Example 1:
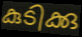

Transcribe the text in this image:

കുടിക്കു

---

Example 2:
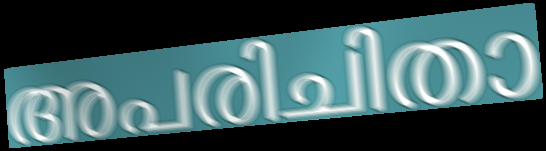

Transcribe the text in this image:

അപരിചിതാ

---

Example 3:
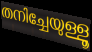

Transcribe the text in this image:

തനിച്ചേയുള്ളൂ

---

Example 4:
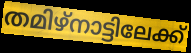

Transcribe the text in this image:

തമിഴ്നാട്ടിലേക്ക്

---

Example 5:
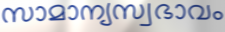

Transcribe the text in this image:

സാമാന്യസ്വഭാവം